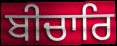
ਬੀਚਾਰਿ